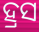
ହ୍ରସ